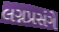
લગ્નપ્રસંગે